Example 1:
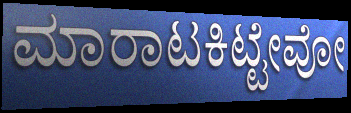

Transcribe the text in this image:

ಮಾರಾಟಕಿಟ್ಟೇವೋ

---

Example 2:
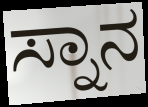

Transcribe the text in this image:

ಸ್ನಾನ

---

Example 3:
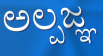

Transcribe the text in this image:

ಅಲ್ಪಜ್ಞ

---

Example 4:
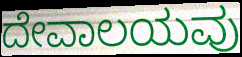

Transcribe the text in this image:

ದೇವಾಲಯವು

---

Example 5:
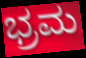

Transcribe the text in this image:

ಭ್ರಮ